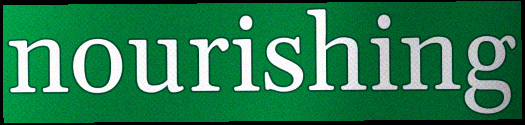
nourishing